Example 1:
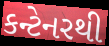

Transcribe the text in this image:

કન્ટેનરથી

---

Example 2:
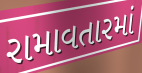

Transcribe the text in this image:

રામાવતારમાં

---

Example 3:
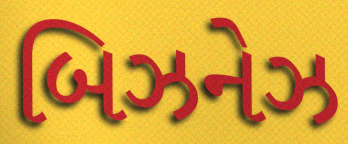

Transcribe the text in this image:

બિઝનેઝ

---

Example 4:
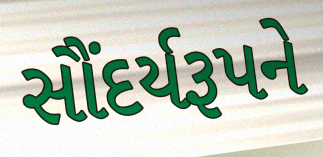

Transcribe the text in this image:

સૌંદર્યરૂપને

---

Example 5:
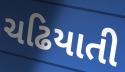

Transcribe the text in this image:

ચઢિયાતી